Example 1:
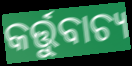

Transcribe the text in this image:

କର୍ତ୍ତୁବାଚ୍ୟ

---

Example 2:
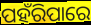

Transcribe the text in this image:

ପହଁରିପାରେ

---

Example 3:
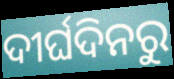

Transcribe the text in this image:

ଦୀର୍ଘଦିନରୁ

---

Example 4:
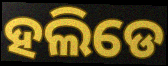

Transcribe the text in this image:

ହଲିଡେ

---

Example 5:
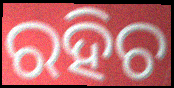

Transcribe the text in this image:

ରହିଚ